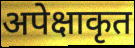
अपेक्षाकृत